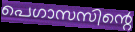
പെഗാസസിന്റെ